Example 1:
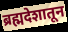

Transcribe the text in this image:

ब्रह्मदेशातून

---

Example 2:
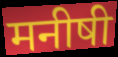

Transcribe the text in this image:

मनीषी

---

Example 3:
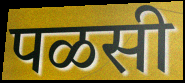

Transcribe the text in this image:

पळसी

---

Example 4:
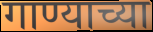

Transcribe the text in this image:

गाण्याच्या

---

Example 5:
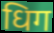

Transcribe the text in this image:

धिग